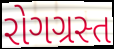
રોગગ્રસ્ત